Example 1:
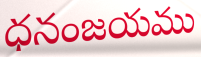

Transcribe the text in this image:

ధనంజయము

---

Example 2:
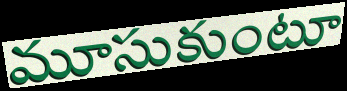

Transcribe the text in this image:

మూసుకుంటూ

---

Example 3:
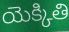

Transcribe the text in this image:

యెక్కితి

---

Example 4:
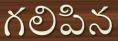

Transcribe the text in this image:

గలిపిన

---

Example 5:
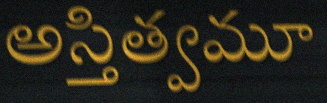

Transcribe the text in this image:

అస్తిత్వమూ